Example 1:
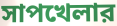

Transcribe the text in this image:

সাপখেলার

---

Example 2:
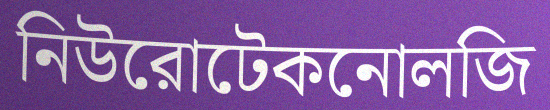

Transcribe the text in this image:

নিউরোটেকনোলজি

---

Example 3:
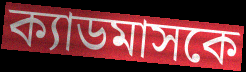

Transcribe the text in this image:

ক্যাডমাসকে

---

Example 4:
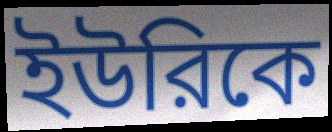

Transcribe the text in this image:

ইউরিকে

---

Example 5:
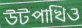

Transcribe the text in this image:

উটপাখিও